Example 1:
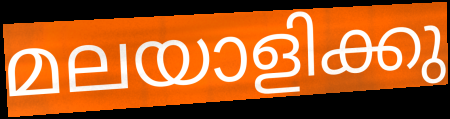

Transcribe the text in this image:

മലയാളിക്കു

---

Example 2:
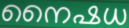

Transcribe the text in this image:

നൈഷധ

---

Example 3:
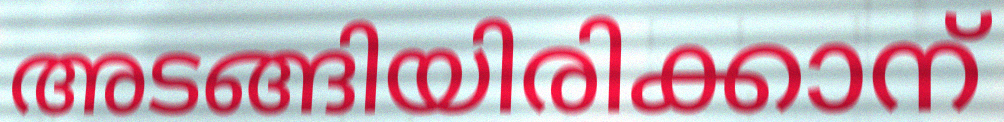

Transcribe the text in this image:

അടങ്ങിയിരിക്കാന്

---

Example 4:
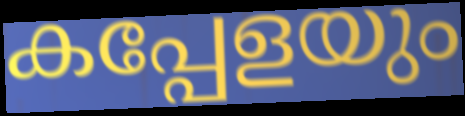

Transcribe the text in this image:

കപ്പേളയും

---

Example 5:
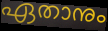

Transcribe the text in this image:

ഏതാനും